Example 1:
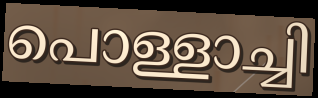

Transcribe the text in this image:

പൊള്ളാച്ചി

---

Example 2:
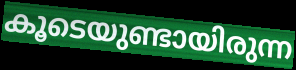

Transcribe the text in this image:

കൂടെയുണ്ടായിരുന്ന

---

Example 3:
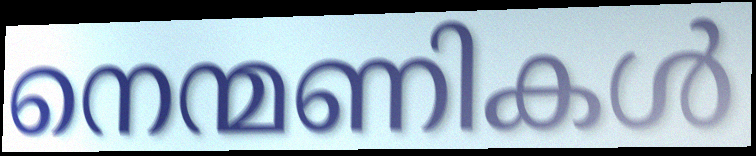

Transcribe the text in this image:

നെന്മണികൾ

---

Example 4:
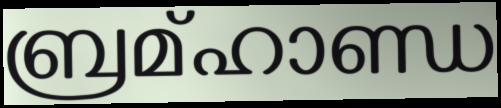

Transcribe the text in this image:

ബ്രമ്ഹാണ്ഡ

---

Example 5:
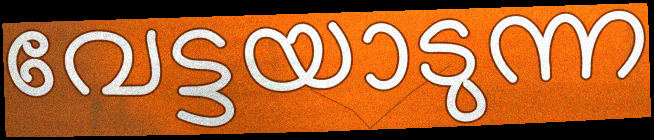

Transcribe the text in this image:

വേട്ടയാടുന്ന